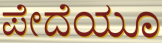
ಪೇದೆಯೂ